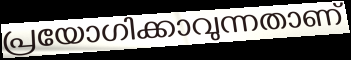
പ്രയോഗിക്കാവുന്നതാണ്